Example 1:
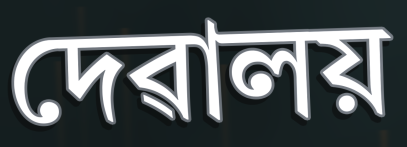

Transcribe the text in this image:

দেৱালয়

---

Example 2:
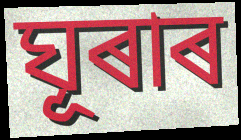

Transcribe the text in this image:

ঘূৰাৰ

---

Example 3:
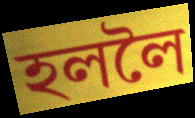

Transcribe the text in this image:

হললৈ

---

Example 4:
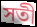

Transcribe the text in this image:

সতী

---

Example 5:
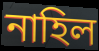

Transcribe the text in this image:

নাহিল